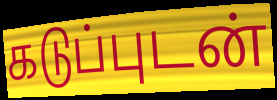
கடுப்புடன்